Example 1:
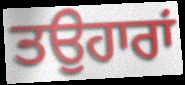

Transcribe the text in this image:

ਤਉਹਾਰਾਂ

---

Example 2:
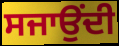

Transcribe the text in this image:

ਸਜਾਉਂਦੀ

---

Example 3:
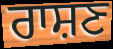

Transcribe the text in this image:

ਰਾਸ਼ਣ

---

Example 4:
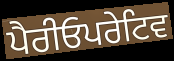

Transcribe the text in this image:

ਪੈਰੀਓਪਰੇਟਿਵ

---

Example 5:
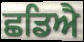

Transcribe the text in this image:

ਛਡਿਐ